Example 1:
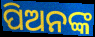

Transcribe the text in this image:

ପିଅନଙ୍କ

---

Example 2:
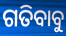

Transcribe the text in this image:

ଗତିବାବୁ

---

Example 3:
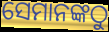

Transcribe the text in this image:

ସେମାନଙ୍କଠୁ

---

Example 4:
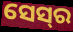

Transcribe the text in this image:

ସେସ୍‌ର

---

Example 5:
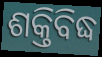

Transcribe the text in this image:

ଶକ୍ତିବିଦ୍ଧ